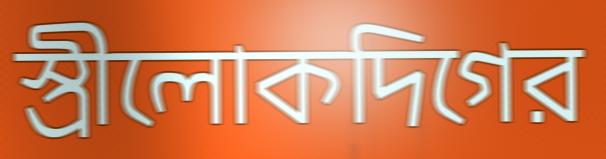
স্ত্রীলোকদিগের